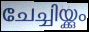
ചേച്ചിയ്ക്കും